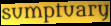
sumptuary